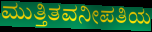
ಮುತ್ತಿತವನೀಪತಿಯ